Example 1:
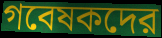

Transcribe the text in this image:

গবেষকদের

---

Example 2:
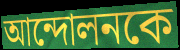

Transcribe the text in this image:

আন্দোলনকে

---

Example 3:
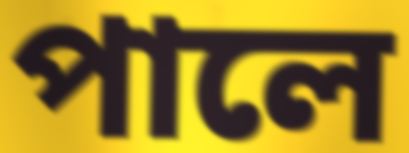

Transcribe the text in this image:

পালে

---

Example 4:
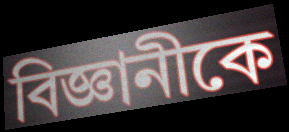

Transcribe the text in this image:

বিজ্ঞানীকে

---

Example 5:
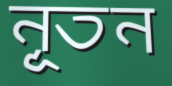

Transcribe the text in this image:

নূতন